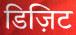
डिज़िट